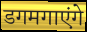
डगमगाएंगे